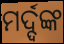
ମର୍ଦ୍ଦଙ୍କ